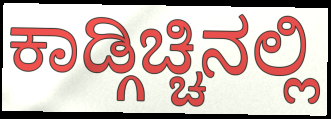
ಕಾಡ್ಗಿಚ್ಚಿನಲ್ಲಿ